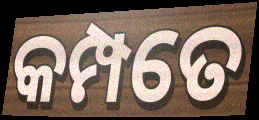
କମ୍ପତେ